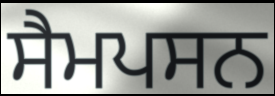
ਸੈਮਪਸਨ